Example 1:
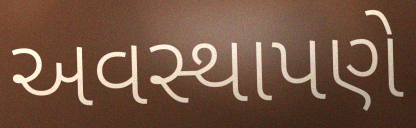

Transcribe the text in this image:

અવસ્થાપણે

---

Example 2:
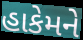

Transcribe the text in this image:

હાકેમને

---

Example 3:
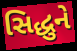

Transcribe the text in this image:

સિદ્ધુને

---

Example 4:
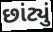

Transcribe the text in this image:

છાંટ્યું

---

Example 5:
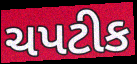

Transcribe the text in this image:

ચપટીક